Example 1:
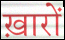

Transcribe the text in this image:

ख़ारों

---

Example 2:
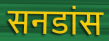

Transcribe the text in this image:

सनडांस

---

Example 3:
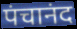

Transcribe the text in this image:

पंचानंद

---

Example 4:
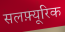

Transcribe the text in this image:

सलफ़्यूरिक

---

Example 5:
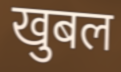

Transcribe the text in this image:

खुबल